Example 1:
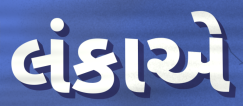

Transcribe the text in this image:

લંકાએ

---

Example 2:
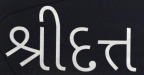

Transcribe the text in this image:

શ્રીદત્ત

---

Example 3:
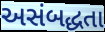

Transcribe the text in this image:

અસંબદ્ધતા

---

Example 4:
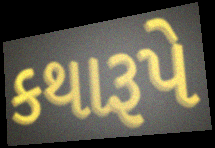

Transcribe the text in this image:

કથારૂપે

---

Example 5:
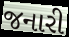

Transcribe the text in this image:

જનારી